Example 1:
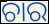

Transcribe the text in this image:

ଚାର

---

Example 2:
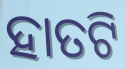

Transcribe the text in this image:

ହାତଟି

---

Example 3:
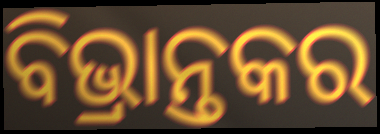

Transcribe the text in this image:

ବିଭ୍ରାନ୍ତକର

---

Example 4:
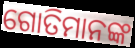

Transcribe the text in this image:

ଗୋତିମାନଙ୍କ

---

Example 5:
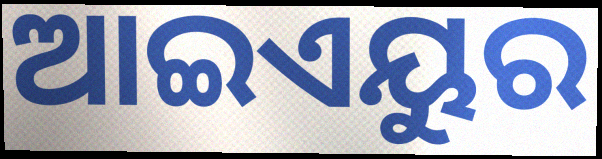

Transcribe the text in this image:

ଆଇଏୟୁର